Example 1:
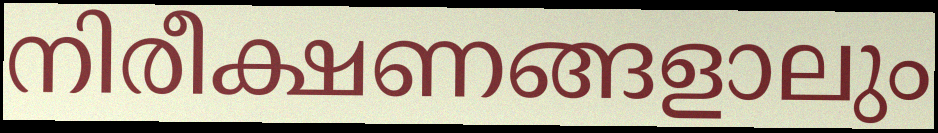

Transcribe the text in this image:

നിരീക്ഷണങ്ങളാലും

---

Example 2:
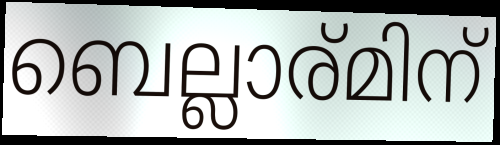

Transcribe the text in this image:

ബെല്ലാര്മിന്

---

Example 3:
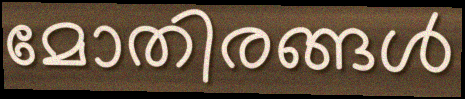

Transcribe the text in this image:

മോതിരങ്ങൾ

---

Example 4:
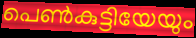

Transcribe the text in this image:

പെൺകുട്ടിയേയും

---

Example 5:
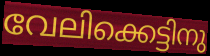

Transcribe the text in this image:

വേലിക്കെട്ടിനു